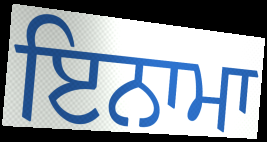
ਇਨਾਮਾ